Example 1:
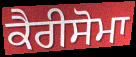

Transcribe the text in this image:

ਕੈਰੀਸੋਮਾ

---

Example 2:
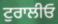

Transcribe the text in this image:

ਟੁਰਾਲੀਓ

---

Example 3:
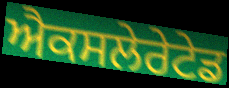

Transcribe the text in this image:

ਐਕਸਲੇਰੇਟੇਡ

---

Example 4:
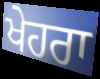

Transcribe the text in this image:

ਖੇਹਰਾ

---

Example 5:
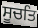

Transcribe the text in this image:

ਸੂਚਤਿ